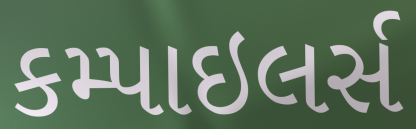
કમ્પાઇલર્સ